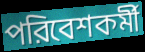
পরিবেশকর্মী